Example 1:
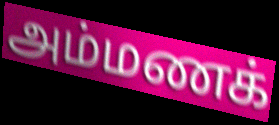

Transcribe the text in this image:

அம்மணக்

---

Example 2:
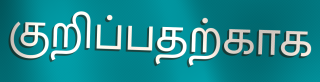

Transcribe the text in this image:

குறிப்பதற்காக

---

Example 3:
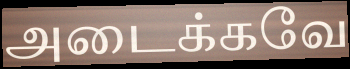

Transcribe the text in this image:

அடைக்கவே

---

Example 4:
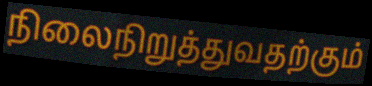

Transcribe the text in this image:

நிலைநிறுத்துவதற்கும்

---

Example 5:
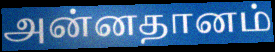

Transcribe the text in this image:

அன்னதானம்